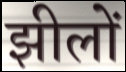
झीलों